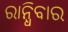
ରାନ୍ଧିବାର